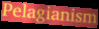
Pelagianism